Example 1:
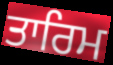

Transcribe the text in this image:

ਤਾਰਿਮ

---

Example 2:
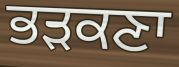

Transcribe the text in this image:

ਭੜਕਣਾ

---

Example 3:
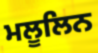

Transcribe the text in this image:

ਮਲੂਲਿਨ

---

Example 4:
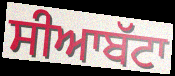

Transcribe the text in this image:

ਸੀਆਬੱਟਾ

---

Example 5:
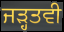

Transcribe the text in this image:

ਜੜ੍ਹਤਵੀ